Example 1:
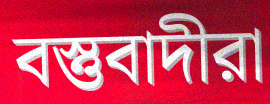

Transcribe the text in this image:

বস্তুবাদীরা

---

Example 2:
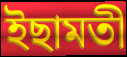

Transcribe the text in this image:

ইছামতী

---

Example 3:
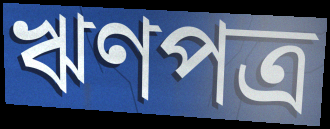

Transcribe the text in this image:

ঋণপত্র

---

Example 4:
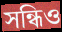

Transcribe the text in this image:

সন্ধিও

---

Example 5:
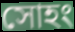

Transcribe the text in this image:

সোহং